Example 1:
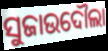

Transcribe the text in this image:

ସୁଜାଉଦୌଲା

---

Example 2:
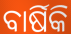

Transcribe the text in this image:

ବାର୍ଷିକି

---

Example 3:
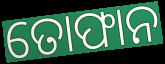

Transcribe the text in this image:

ତୋଫାନ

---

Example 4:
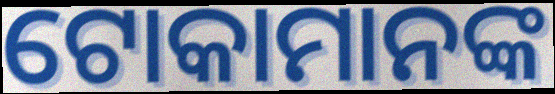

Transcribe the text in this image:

ଟୋକାମାନଙ୍କ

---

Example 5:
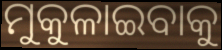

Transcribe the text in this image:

ମୁକୁଳାଇବାକୁ